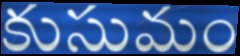
కుసుమం